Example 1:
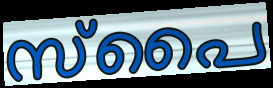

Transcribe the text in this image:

സ്പൈ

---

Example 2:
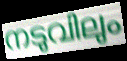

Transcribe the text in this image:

നടുവിലും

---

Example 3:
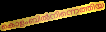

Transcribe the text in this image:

കൊളംബിൽനിന്നെത്തിയ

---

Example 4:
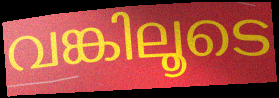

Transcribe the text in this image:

വങ്കിലൂടെ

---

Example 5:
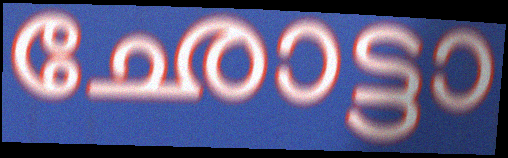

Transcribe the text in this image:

ഛോട്ടാ